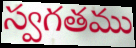
స్వగతము